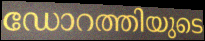
ഡോറത്തിയുടെ